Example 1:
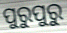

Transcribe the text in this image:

ପୁରୁପୁରୁ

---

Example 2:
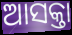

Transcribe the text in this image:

ଆସକ୍ତା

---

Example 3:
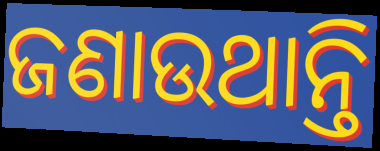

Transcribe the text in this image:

ଜଣାଉଥାନ୍ତି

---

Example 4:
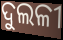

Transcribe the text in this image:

ଦୁଲଳୀ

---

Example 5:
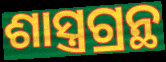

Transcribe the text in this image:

ଶାସ୍ତ୍ରଗ୍ରନ୍ଥ